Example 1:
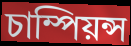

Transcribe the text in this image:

চাম্পিয়ন্স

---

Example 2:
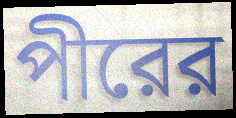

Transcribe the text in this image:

পীরের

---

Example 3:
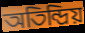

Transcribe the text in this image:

অতিন্দ্রিয়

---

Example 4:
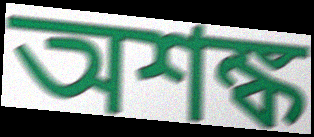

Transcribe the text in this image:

অশঙ্ক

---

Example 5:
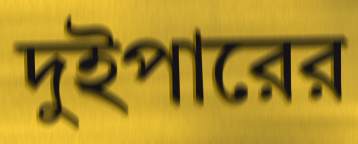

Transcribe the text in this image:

দুইপারের